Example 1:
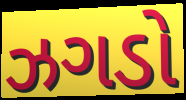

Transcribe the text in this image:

ઝગડો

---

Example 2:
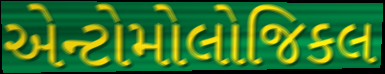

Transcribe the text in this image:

એન્ટોમોલોજિકલ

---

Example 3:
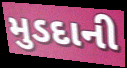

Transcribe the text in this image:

મુડદાની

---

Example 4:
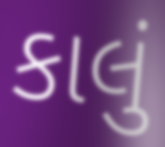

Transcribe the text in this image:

કાલું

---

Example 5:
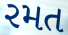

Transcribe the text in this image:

રમત